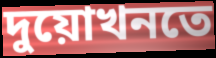
দুয়োখনতে